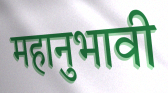
महानुभावी